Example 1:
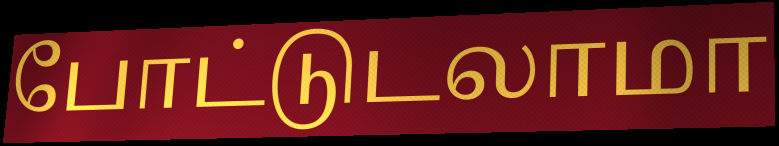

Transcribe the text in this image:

போட்டுடலாமா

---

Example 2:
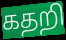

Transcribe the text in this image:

கதறி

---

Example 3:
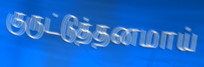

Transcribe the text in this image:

குருட்டுத்தனமாய்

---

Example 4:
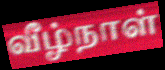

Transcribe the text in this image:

வீழ்நாள்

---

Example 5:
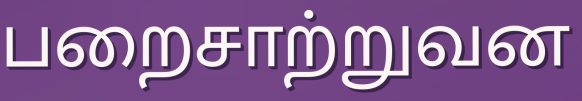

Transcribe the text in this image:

பறைசாற்றுவன